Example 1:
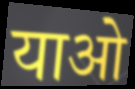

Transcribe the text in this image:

याओ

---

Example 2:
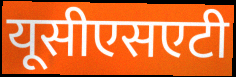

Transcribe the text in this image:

यूसीएसएटी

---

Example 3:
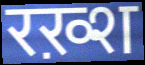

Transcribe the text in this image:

रख़्श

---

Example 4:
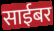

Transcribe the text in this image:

साईबर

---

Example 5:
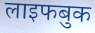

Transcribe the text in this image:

लाइफबुक